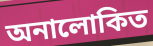
অনালোকিত